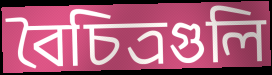
বৈচিত্রগুলি